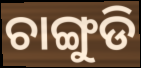
ଚାଙ୍ଗୁଡି